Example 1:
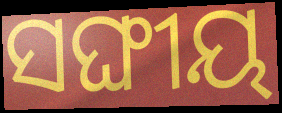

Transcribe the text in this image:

ସଙ୍ଘୀୟ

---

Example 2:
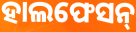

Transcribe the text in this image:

ହାଲଫେସନ୍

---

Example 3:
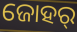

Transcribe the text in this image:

ଜୋହର୍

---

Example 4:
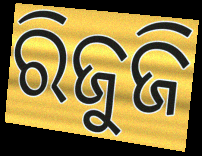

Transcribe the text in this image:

ରିଜୁଜି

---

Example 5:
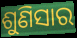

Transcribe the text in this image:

ଶୁଣିସାର